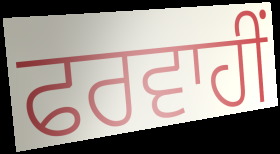
ਫਰਵਾਹੀਂ